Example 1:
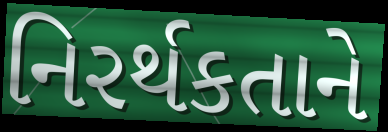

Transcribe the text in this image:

નિરર્થકતાને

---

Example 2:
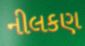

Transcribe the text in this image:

નીલકણ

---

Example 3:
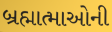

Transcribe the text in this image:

બ્રહ્માત્માઓની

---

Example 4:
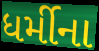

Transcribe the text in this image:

ધર્મીના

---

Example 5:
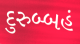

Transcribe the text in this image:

દુરુબ્બહં